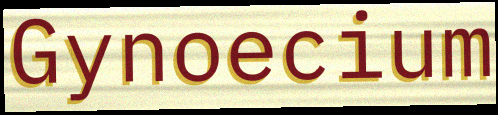
Gynoecium